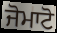
ਜੋਮਾਟੋ